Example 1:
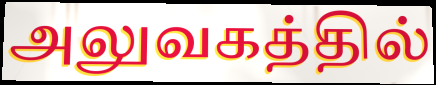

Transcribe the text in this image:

அலுவகத்தில்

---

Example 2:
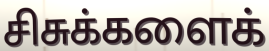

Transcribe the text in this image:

சிசுக்களைக்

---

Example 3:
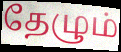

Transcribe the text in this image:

தேழும்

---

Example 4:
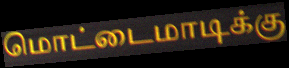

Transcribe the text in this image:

மொட்டைமாடிக்கு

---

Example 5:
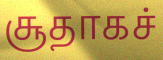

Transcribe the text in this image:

சூதாகச்